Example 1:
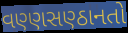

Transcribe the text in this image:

વણ્ણસણ્ઠાનતો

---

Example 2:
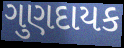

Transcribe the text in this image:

ગુણદાયક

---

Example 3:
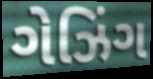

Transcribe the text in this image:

ગેઝિંગ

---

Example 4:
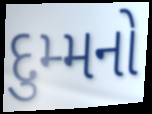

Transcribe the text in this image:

દુમ્મનો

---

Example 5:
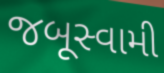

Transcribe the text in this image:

જબૂસ્વામી